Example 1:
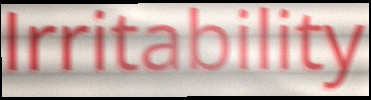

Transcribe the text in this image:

Irritability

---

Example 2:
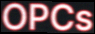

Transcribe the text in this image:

OPCs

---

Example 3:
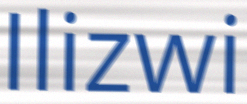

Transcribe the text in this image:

Ilizwi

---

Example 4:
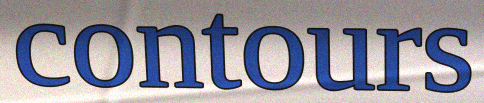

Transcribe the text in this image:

contours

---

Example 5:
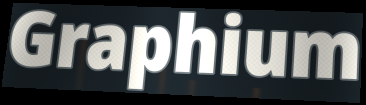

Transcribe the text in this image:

Graphium